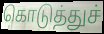
கொடுத்துச்